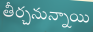
తీర్చనున్నాయి